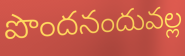
పొందనందువల్ల